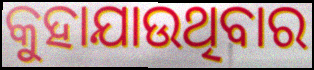
କୁହାଯାଉଥିବାର